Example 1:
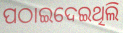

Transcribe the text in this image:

ପଠାଇଦେଇଥିଲି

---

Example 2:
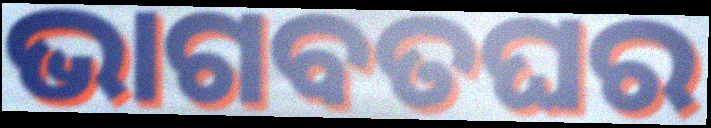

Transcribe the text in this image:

ଭାଗବତଘର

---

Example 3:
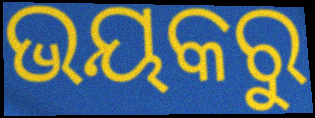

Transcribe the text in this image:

ଭୟକରୁ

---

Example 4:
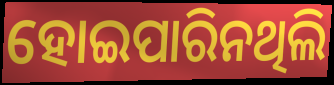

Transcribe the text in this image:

ହୋଇପାରିନଥିଲି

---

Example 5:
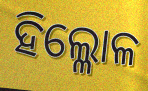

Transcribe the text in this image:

ହିଲ୍ଳୋଳ